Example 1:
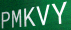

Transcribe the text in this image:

PMKVY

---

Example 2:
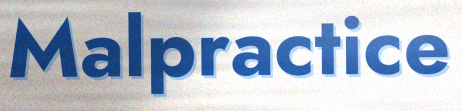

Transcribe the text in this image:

Malpractice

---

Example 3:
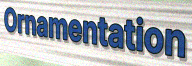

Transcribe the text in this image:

Ornamentation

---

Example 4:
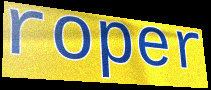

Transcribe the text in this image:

roper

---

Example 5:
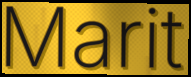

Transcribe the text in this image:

Marit